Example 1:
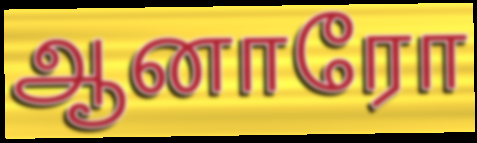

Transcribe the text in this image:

ஆனாரோ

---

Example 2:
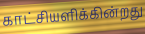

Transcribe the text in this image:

காட்சியளிக்கின்றது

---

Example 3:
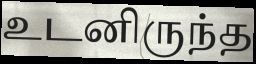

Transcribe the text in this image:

உடனிருந்த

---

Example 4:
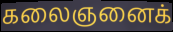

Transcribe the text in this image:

கலைஞனைக்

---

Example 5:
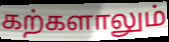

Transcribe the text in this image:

கற்களாலும்